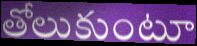
తోలుకుంటూ